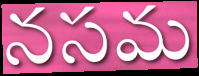
నసమ